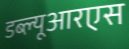
डब्ल्यूआरएस